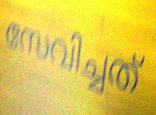
സേവിച്ചത്